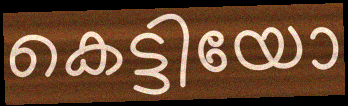
കെട്ടിയോ